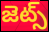
జెట్స్